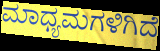
ಮಾಧ್ಯಮಗಳಿಗಿದೆ